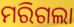
ମରିଗଲା